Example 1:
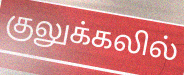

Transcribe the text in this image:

குலுக்கலில்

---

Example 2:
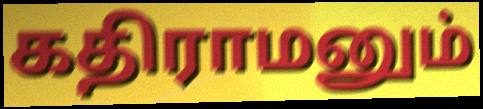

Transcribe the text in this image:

கதிராமனும்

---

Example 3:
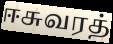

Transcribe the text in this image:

ஈசுவரத்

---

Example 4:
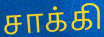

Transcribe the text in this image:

சாக்கி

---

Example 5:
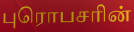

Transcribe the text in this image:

புரொபசரின்